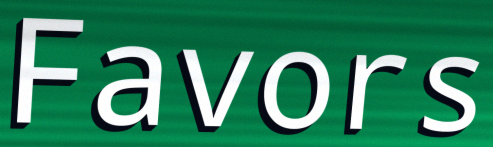
Favors